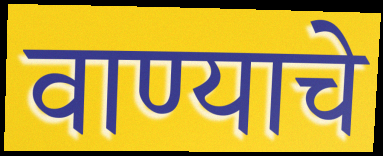
वाण्याचे